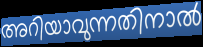
അറിയാവുന്നതിനാൽ